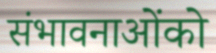
संभावनाओंको